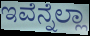
ಇವೆನ್ನೆಲ್ಲಾ